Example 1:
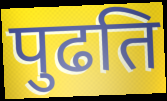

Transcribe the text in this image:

पुढति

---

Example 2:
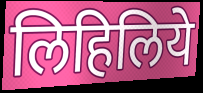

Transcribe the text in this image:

लिहिलिये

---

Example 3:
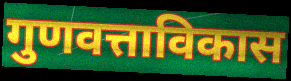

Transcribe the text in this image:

गुणवत्ताविकास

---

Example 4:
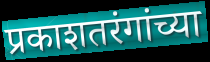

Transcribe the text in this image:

प्रकाशतरंगांच्या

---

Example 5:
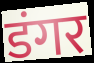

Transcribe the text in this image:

डंगर